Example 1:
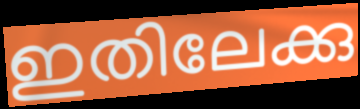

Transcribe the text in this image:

ഇതിലേക്കു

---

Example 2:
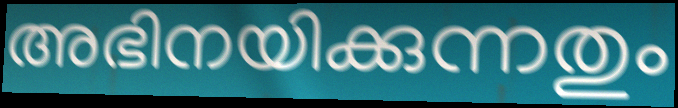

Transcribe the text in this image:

അഭിനയിക്കുന്നതും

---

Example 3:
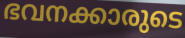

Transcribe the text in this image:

ഭവനക്കാരുടെ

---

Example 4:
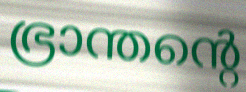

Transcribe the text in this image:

ഭ്രാന്തന്റെ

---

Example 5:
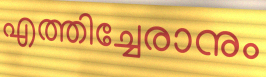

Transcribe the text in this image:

എത്തിച്ചേരാനും